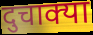
दुचाक्या